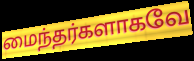
மைந்தர்களாகவே